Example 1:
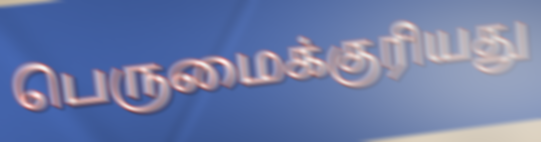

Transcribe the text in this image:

பெருமைக்குரியது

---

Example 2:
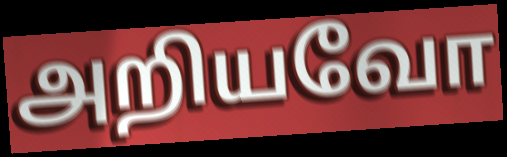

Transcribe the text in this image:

அறியவோ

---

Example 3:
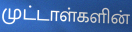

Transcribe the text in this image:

முட்டாள்களின்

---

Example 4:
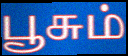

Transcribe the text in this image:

பூசும்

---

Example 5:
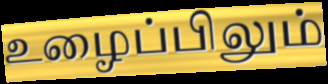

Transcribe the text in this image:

உழைப்பிலும்